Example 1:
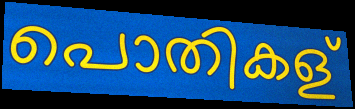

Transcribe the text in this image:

പൊതികള്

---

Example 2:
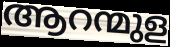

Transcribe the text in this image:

ആറന്മുള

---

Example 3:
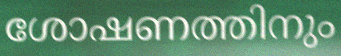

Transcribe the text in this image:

ശോഷണത്തിനും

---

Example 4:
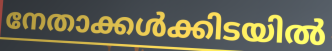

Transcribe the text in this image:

നേതാക്കൾക്കിടയിൽ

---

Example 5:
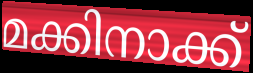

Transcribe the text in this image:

മക്കിനാക്ക്